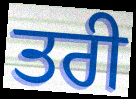
ਤਰੀ